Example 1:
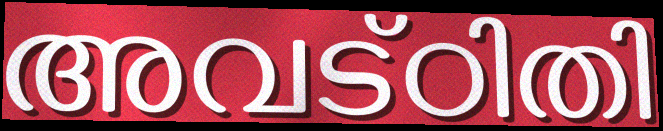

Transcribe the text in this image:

അവട്ഠിതി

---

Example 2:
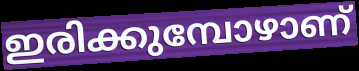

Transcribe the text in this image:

ഇരിക്കുമ്പോഴാണ്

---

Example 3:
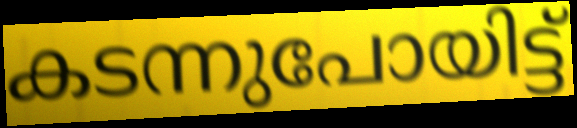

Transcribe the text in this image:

കടന്നുപോയിട്ട്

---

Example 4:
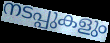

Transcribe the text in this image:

നടപ്പുകളും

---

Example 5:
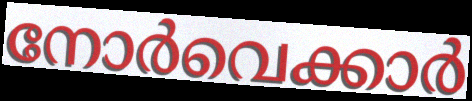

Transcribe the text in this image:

നോർവെക്കാർ